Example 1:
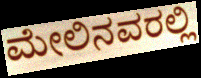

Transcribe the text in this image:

ಮೇಲಿನವರಲ್ಲಿ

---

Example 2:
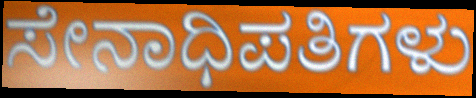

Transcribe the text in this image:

ಸೇನಾಧಿಪತಿಗಳು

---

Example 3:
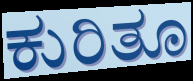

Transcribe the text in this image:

ಕುರಿತೂ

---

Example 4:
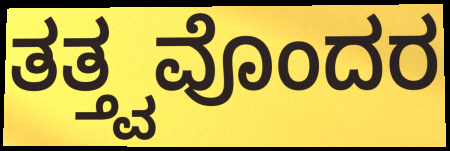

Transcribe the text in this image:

ತತ್ತ್ವವೊಂದರ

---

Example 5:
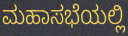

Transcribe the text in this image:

ಮಹಾಸಭೆಯಲ್ಲಿ